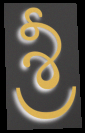
శ్రీ